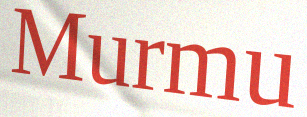
Murmu